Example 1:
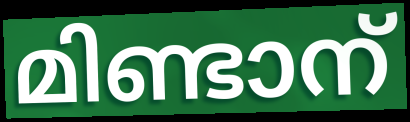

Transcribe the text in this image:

മിണ്ടാന്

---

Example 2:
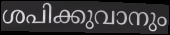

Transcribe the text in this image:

ശപിക്കുവാനും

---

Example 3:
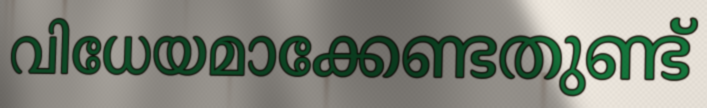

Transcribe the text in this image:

വിധേയമാക്കേണ്ടതുണ്ട്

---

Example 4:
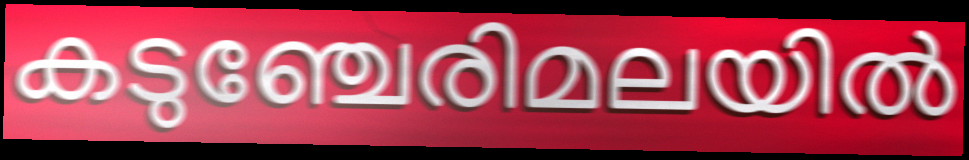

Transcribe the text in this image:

കടുഞ്ചേരിമലയിൽ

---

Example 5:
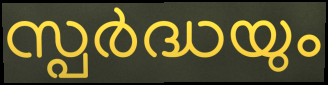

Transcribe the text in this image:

സ്പർദ്ധയും